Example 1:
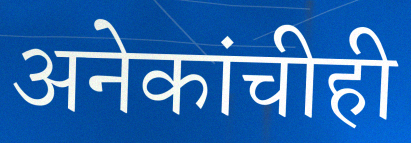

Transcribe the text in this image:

अनेकांचीही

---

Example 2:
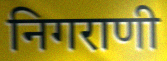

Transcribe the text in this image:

निगराणी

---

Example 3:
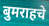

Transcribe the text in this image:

बुमराहचे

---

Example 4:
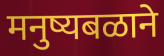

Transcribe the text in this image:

मनुष्यबळाने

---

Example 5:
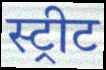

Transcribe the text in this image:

स्ट्रीट